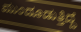
ಮುಂದೂಡುತ್ತಿದ್ದೆ